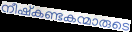
നീഷ്കണ്ടകന്മാരുടെ